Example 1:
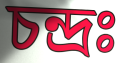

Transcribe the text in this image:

চন্দ্রঃ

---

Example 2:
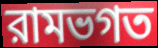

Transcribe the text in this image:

রামভগত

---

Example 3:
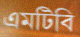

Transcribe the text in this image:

এমটিবি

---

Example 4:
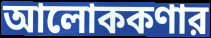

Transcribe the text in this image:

আলোককণার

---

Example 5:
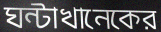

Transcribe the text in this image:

ঘন্টাখানেকের